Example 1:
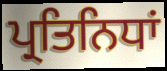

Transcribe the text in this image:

ਪ੍ਰਤਿਨਿਧਾਂ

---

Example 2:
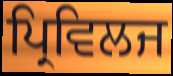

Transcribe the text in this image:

ਪ੍ਰਿਵਿਲਜ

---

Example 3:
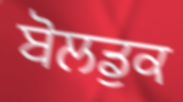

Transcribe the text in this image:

ਬੋਲਡੁਕ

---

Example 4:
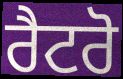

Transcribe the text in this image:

ਰੈਟਰੋ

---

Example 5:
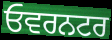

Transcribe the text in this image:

ਓਵਰਨਟਰ